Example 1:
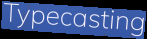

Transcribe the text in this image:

Typecasting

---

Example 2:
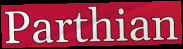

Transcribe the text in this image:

Parthian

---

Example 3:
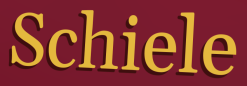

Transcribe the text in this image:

Schiele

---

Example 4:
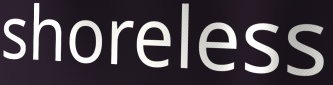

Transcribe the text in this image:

shoreless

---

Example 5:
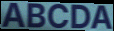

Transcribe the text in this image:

ABCDA